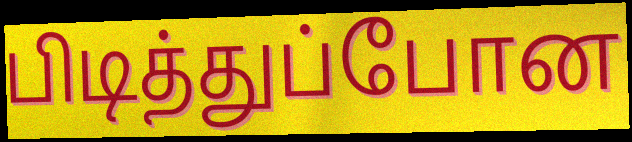
பிடித்துப்போன